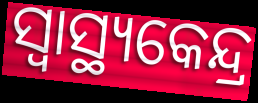
ସ୍ବାସ୍ଥ୍ୟକେନ୍ଦ୍ର